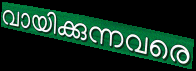
വായിക്കുന്നവരെ